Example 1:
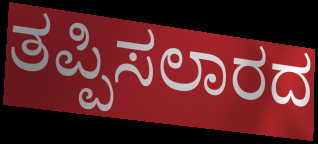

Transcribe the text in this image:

ತಪ್ಪಿಸಲಾರದ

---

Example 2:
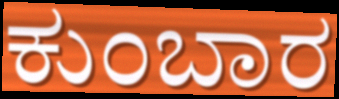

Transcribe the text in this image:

ಕುಂಬಾರ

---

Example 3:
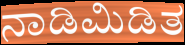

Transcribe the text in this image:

ನಾಡಿಮಿಡಿತ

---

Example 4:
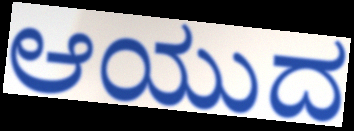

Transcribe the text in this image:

ಆಯುದ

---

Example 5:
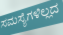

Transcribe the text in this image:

ಸಮಸ್ಯೆಗಳಿಲ್ಲದ